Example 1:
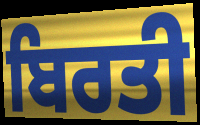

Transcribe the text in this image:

ਬਿਰਤੀ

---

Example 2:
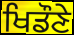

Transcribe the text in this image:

ਖਿਡੌਣੇ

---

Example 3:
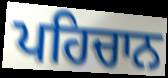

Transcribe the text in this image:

ਪਹਿਚਾਨ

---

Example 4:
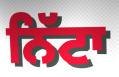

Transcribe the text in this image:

ਨਿੱਟਾ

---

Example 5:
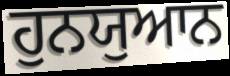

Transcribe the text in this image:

ਹੁਨਯੁਆਨ